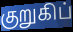
குறுகிப்